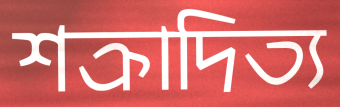
শক্রাদিত্য